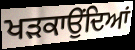
ਖੜਕਾਉਂਦਿਆਂ